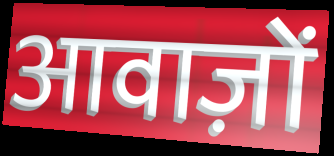
आवाज़ों